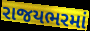
રાજયભરમાં